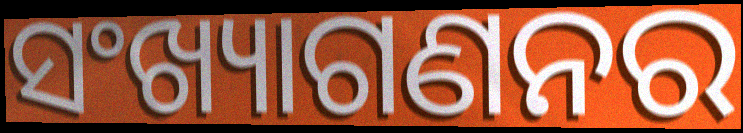
ସଂଖ୍ୟାଗଣନର